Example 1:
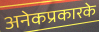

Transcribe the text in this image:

अनेकप्रकारके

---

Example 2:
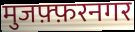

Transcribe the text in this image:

मुजफ़्फ़रनगर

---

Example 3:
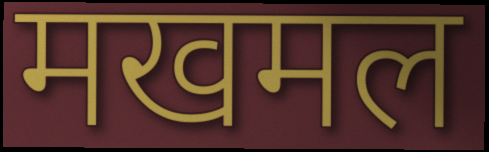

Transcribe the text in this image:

मखमल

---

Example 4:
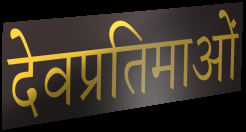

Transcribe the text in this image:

देवप्रतिमाओं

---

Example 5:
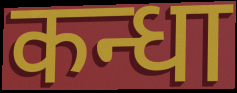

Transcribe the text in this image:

कन्धा